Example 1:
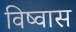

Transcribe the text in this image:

विष्वास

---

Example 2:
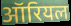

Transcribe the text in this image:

ऑरियल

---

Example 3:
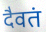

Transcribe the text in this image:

दैवतं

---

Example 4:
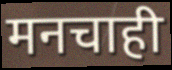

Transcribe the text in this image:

मनचाही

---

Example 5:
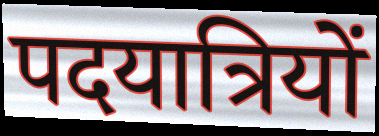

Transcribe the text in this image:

पदयात्रियों